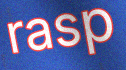
rasp